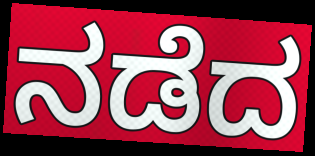
ನಡೆದ